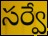
సర్వే